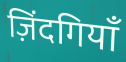
ज़िंदगियाँ